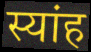
स्यांह